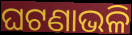
ଘଟଣାଭଳି